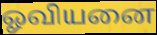
ஓவியனை